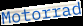
Motorrad